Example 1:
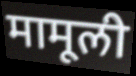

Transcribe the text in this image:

मामूली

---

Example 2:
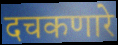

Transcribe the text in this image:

दचकणारे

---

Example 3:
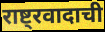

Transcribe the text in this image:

राष्ट्रवादाची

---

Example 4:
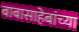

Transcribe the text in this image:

बाबासाहेबांच्‍या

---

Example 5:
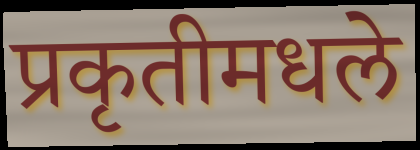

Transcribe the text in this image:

प्रकृतीमधले